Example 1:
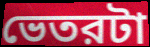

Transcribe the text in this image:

ভেতরটা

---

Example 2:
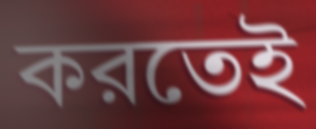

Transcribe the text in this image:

করতেই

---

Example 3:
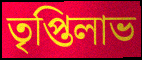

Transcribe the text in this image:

তৃপ্তিলাভ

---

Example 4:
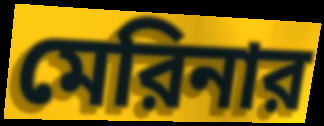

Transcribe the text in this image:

মেরিনার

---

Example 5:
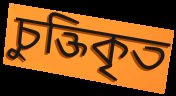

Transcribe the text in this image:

চুক্তিকৃত